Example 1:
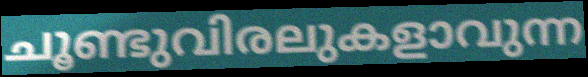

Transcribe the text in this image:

ചൂണ്ടുവിരലുകളാവുന്ന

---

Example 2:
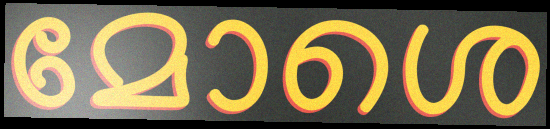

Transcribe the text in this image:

മോശെ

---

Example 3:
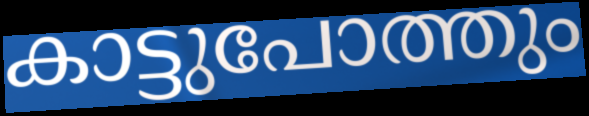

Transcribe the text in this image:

കാട്ടുപോത്തും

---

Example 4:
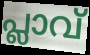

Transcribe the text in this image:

പ്ലാവ്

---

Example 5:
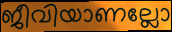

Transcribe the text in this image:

ജീവിയാണല്ലോ